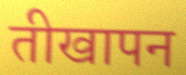
तीखापन